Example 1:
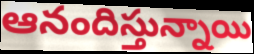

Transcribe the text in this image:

ఆనందిస్తున్నాయి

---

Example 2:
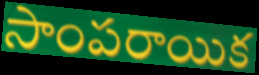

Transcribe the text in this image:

సాంపరాయిక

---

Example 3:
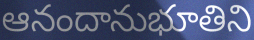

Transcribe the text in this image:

ఆనందానుభూతిని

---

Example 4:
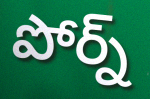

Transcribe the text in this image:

పోర్న్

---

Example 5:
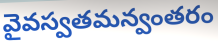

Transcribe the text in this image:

వైవస్వతమన్వంతరం